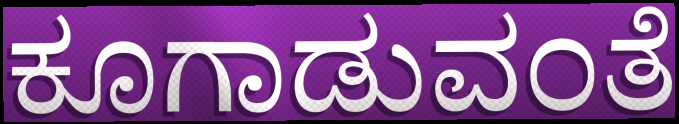
ಕೂಗಾಡುವಂತೆ